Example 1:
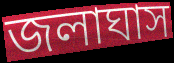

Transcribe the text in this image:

জলাঘাস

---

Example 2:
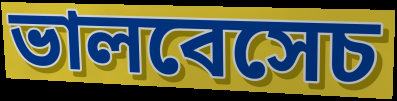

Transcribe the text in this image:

ভালবেসেচ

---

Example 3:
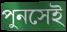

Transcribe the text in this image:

পুনসেই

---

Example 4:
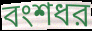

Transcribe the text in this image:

বংশধর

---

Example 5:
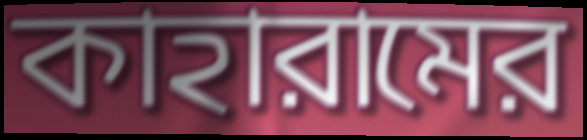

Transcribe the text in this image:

কাহারামের